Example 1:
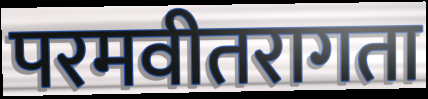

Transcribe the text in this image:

परमवीतरागता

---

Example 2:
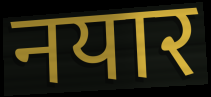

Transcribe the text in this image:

नयार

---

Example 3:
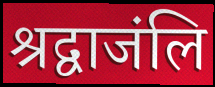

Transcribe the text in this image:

श्रद्वाजंलि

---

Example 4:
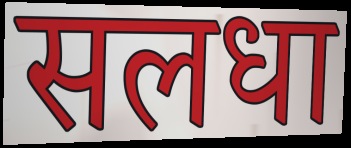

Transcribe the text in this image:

सलधा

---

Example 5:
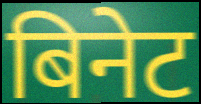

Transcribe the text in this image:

बिनेट